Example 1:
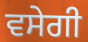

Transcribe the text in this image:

ਵਸੇਗੀ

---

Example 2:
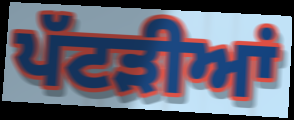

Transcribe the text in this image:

ਪੱਟੜੀਆਂ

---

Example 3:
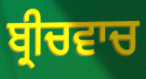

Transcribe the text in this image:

ਬ੍ਰੀਚਵਾਚ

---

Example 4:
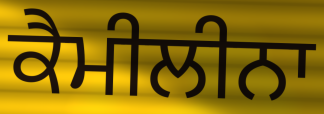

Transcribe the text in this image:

ਕੈਮੀਲੀਨਾ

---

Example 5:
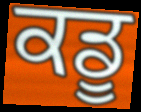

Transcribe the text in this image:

ਕਡੂ